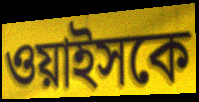
ওয়াইসকে